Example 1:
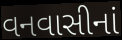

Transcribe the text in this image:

વનવાસીનાં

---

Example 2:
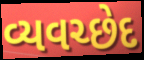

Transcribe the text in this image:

વ્યવચ્છેદ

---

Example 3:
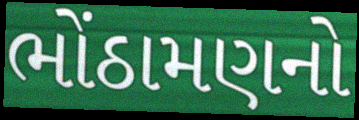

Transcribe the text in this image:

ભોંઠામણનો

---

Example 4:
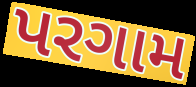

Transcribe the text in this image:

પરગામ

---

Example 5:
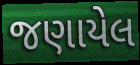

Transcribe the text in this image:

જણાયેલ